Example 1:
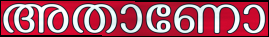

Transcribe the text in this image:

അതാണോ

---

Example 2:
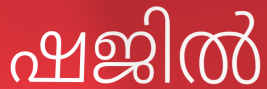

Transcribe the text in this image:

ഷജിൽ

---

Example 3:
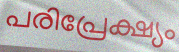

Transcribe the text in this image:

പരിപ്രേക്ഷ്യം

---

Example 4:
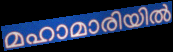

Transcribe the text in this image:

മഹാമാരിയിൽ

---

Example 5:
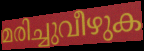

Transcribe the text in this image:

മരിച്ചുവീഴുക